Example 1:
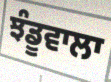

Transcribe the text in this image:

ਝੰਡੂਵਾਲਾ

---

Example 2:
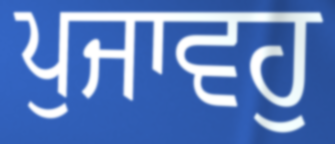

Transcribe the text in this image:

ਪੁਜਾਵਹੁ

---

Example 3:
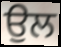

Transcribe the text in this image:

ਉਲ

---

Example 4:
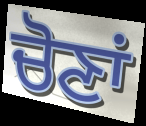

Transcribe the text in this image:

ਚੋਣਾਂ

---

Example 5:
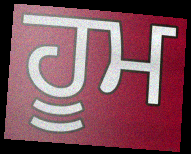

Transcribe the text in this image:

ਹੂਮ